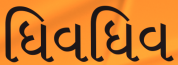
ધિવધિવ